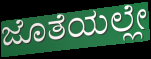
ಜೊತೆಯಲ್ಲೇ